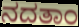
ನದತಾಂ